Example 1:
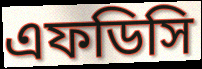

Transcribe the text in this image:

এফডিসি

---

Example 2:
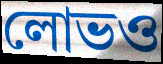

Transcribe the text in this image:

লোভও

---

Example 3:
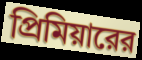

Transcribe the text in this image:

প্রিমিয়ারের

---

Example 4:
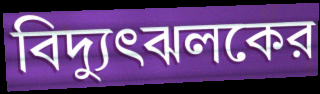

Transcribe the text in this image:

বিদ্যুৎঝলকের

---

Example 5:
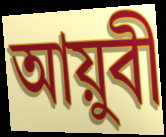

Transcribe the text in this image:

আয়ুবী